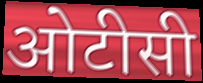
ओटीसी